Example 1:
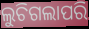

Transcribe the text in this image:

ଲୁଚିଗଲାପରି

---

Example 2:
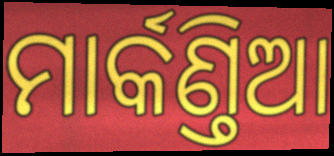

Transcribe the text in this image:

ମାର୍କଣ୍ତିଆ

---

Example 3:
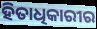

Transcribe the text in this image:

ହିତାଧିକାରୀର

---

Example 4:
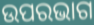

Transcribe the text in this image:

ଉପରଭାଗ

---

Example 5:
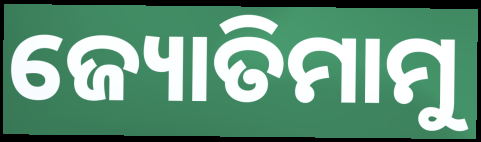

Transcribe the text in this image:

ଜ୍ୟୋତିମାମୁ